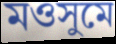
মওসুমে